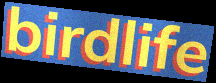
birdlife